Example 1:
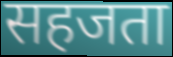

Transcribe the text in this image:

सहजता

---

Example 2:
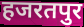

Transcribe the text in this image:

हजरतपुर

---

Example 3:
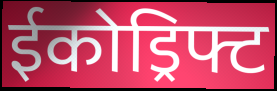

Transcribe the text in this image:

ईकोड्रिफ्ट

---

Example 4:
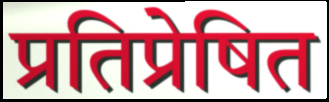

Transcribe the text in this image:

प्रतिप्रेषित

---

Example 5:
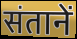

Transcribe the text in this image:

संतानें